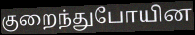
குறைந்துபோயின